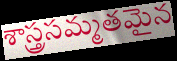
శాస్త్రసమ్మతమైన